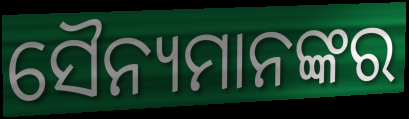
ସୈନ୍ୟମାନଙ୍କର